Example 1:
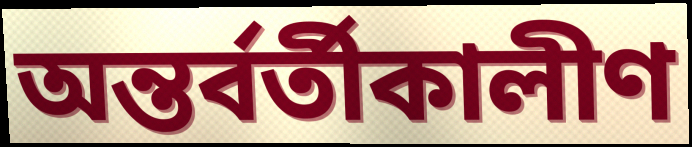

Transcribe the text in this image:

অন্তর্বর্তীকালীণ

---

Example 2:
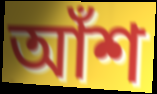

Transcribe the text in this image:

আঁশ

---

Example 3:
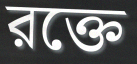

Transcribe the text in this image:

রক্তে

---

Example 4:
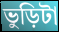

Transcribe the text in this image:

ভুড়িটা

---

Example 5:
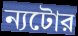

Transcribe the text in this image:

ন্যটোর